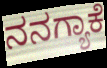
ನನಗ್ಯಾಕೆ